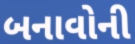
બનાવોની